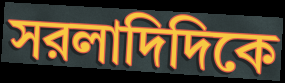
সরলাদিদিকে